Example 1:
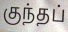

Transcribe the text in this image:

குந்தப்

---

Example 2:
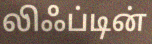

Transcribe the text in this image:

லிஃப்டின்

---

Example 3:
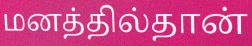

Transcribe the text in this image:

மனத்தில்தான்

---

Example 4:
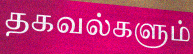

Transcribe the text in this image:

தகவல்களும்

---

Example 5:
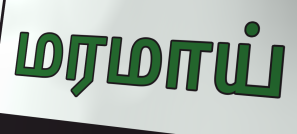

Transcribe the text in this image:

மரமாய்